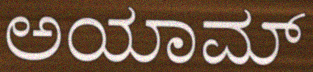
ಅಯಾಮ್